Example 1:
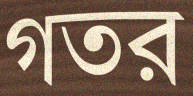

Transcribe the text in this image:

গতর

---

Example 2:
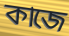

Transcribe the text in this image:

কাজে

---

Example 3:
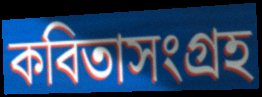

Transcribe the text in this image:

কবিতাসংগ্রহ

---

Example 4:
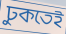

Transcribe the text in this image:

ঢুকতেই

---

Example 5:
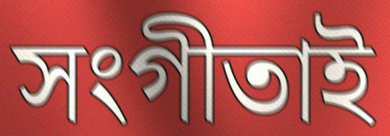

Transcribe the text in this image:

সংগীতাই